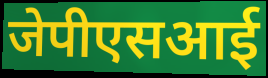
जेपीएसआई